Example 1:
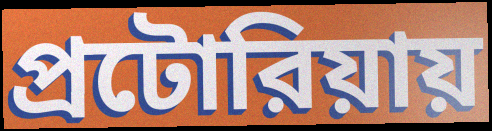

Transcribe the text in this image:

প্রটোরিয়ায়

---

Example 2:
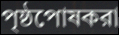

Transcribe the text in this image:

পৃষ্ঠপোষকরা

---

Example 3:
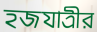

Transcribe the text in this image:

হজযাত্রীর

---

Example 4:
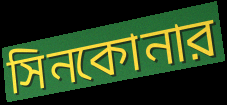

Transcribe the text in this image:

সিনকোনার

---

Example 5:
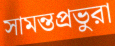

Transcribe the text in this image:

সামন্তপ্রভুরা